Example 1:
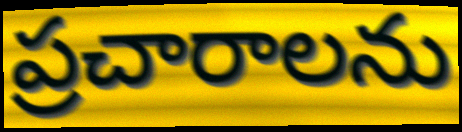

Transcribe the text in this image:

ప్రచారాలను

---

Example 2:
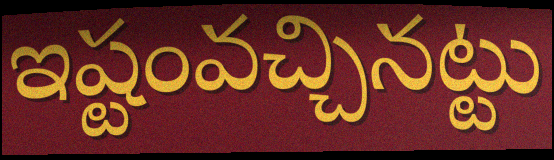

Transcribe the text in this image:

ఇష్టంవచ్చినట్టు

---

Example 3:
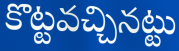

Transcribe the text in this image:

కొట్టవచ్చినట్టు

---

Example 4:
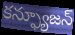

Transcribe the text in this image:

కన్ఫ్యూజన్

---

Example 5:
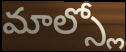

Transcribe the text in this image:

మాల్స్లో